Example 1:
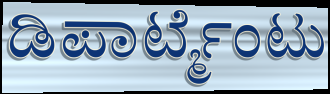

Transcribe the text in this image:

ಡಿಪಾರ್ಟ್ಮೆಂಟು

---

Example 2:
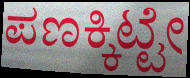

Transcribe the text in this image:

ಪಣಕ್ಕಿಟ್ಟೇ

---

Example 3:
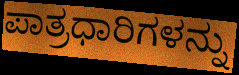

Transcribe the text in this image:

ಪಾತ್ರಧಾರಿಗಳನ್ನು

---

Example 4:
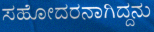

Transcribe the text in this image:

ಸಹೋದರನಾಗಿದ್ದನು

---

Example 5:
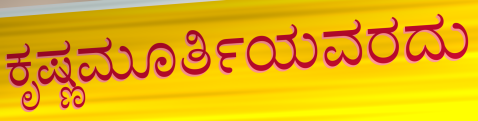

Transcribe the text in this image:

ಕೃಷ್ಣಮೂರ್ತಿಯವರದು